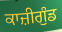
ਕਾਜ਼ੀਗੁੰਡ